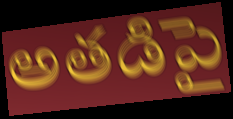
అతడిపై